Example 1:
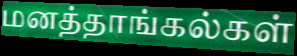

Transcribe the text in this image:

மனத்தாங்கல்கள்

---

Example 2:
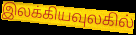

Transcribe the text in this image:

இலக்கியவுலகில்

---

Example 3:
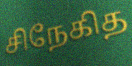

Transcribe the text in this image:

சிநேகித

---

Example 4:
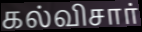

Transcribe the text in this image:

கல்விசார்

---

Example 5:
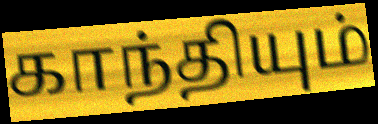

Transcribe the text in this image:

காந்தியும்